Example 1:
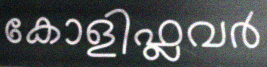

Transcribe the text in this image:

കോളിഫ്ലവർ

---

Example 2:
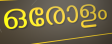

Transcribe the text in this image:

ഒരോളം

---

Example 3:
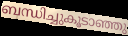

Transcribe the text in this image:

ബന്ധിച്ചുകൂടാഞ്ഞു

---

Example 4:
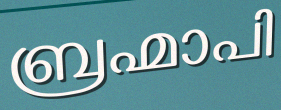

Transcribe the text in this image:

ബ്രഹ്മാപി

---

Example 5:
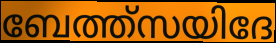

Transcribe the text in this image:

ബേത്ത്സയിദേ